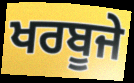
ਖਰਬੂਜੇ